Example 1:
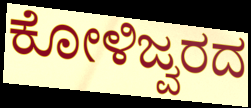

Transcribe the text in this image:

ಕೋಳಿಜ್ವರದ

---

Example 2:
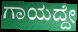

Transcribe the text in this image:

ಗಾಯದ್ದೇ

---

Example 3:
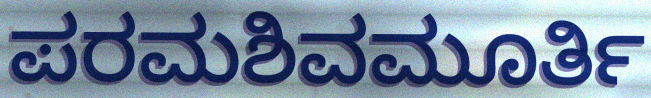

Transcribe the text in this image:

ಪರಮಶಿವಮೂರ್ತಿ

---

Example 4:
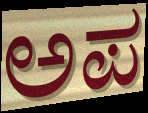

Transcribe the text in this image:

ಅಪ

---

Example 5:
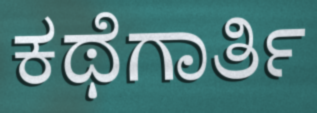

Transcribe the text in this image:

ಕಥೆಗಾರ್ತಿ